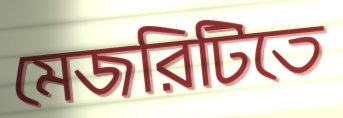
মেজরিটিতে